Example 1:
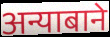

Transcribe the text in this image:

अन्याबाने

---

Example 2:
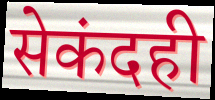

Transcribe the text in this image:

सेकंदही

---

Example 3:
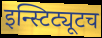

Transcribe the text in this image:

इन्स्टिट्यूटच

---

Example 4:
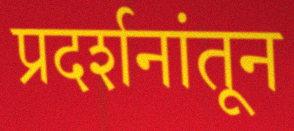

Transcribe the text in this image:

प्रदर्शनांतून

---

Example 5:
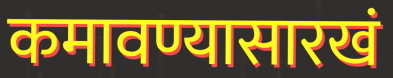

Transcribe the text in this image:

कमावण्यासारखं